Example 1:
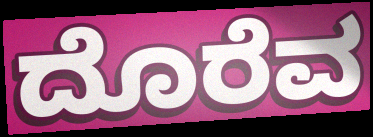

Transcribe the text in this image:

ದೊರೆವ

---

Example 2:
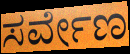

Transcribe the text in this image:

ಸರ್ವೇಣ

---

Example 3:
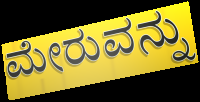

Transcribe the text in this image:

ಮೇರುವನ್ನು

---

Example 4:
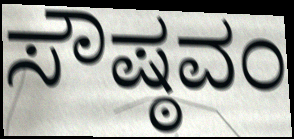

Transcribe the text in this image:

ಸೌಷ್ಠವಂ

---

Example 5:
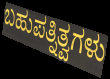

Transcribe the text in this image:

ಬಹುಪತ್ನಿತ್ವಗಳು